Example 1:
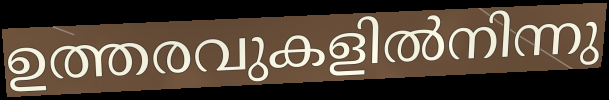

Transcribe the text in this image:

ഉത്തരവുകളിൽനിന്നു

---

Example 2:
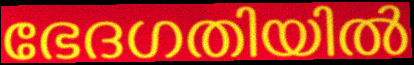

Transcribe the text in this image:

ഭേദഗതിയിൽ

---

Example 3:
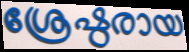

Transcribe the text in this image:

ശ്രേഷ്ഠരായ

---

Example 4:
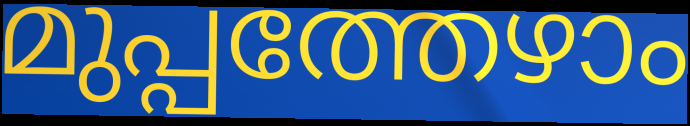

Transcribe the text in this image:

മുപ്പത്തേഴാം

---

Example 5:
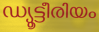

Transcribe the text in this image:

ഡ്യൂട്ടീരിയം